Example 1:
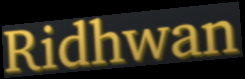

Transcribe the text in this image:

Ridhwan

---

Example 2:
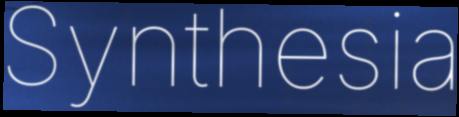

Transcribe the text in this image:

Synthesia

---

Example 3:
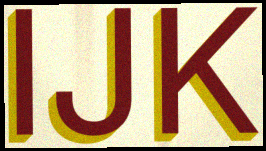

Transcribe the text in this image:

IJK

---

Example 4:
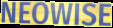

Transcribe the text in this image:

NEOWISE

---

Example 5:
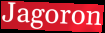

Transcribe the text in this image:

Jagoron